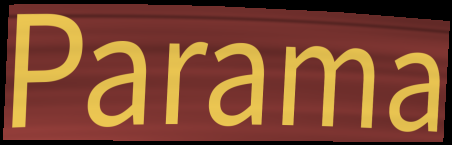
Parama